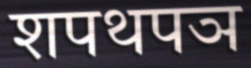
शपथपञ